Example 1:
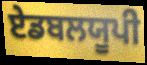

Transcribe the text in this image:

ਏਡਬਲਯੂਪੀ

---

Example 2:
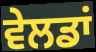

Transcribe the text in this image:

ਵੇਲਡਾਂ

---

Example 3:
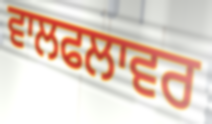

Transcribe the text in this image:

ਵਾਲਫਲਾਵਰ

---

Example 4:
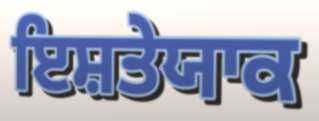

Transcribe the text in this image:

ਇਸ਼ਤੇਯਾਕ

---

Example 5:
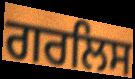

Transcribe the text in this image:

ਗਰਲਿਸ